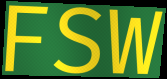
FSW